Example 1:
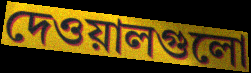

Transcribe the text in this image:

দেওয়ালগুলো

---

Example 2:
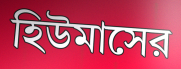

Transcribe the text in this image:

হিউমাসের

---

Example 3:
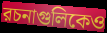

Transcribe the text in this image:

রচনাগুলিকেও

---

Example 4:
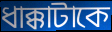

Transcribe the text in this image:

ধাক্কাটাকে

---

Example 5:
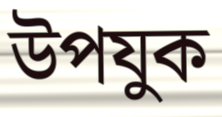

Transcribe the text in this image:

উপযুক